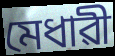
মেধাৱী